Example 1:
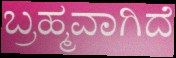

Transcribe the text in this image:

ಬ್ರಹ್ಮವಾಗಿದೆ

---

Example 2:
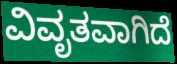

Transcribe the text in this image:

ವಿವೃತವಾಗಿದೆ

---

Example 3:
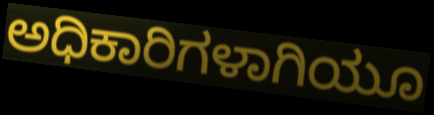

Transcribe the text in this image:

ಅಧಿಕಾರಿಗಳಾಗಿಯೂ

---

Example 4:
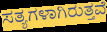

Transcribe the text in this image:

ಸತ್ಯಗಳಾಗಿರುತ್ತವೆ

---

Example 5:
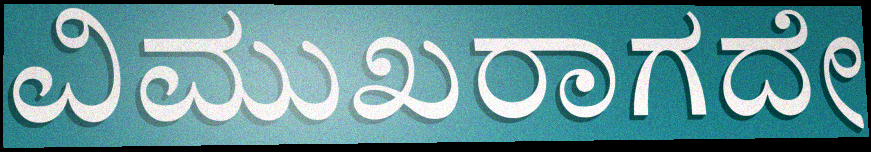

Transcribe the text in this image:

ವಿಮುಖರಾಗದೇ